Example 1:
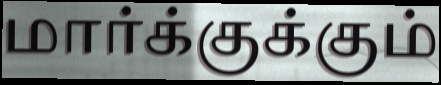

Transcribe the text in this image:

மார்க்குக்கும்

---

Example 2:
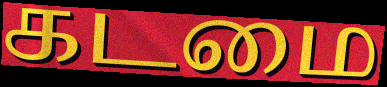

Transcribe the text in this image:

கடமை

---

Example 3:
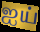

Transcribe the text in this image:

ஐய்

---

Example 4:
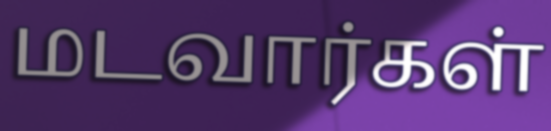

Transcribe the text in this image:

மடவார்கள்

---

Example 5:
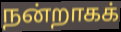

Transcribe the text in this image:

நன்றாகக்